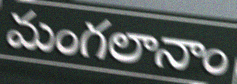
మంగలానాం